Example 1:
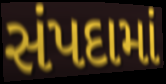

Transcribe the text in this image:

સંપદામાં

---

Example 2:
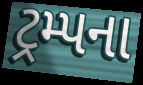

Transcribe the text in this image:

ટ્રમ્પના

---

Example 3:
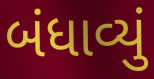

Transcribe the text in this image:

બંધાવ્યું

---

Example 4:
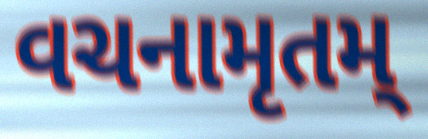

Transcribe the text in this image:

વચનામૃતમ્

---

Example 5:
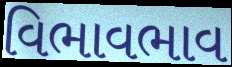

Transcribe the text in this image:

વિભાવભાવ